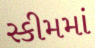
સ્કીમમાં